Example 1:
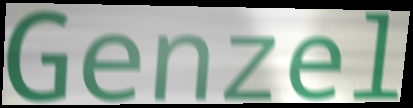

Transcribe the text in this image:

Genzel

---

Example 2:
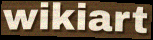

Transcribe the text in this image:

wikiart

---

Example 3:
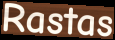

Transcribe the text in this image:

Rastas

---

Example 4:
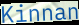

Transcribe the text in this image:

Kinnan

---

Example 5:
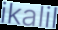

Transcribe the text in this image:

ikalil